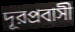
দূরপ্রবাসী